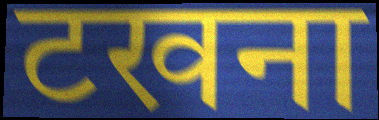
टखना